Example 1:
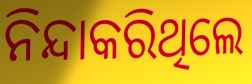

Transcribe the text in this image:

ନିନ୍ଦାକରିଥିଲେ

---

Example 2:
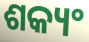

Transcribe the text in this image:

ଶକ୍ୟଂ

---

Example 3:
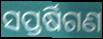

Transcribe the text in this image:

ସପ୍ତର୍ଷିଗଣ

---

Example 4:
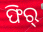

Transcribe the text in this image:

ଫିର୍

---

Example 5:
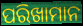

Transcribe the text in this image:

ପରିଖାମାନ